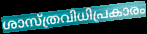
ശാസ്ത്രവിധിപ്രകാരം